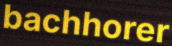
bachhorer